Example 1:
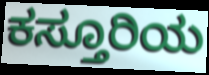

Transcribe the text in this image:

ಕಸ್ತೂರಿಯ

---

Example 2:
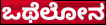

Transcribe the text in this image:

ಒಥೆಲೋನ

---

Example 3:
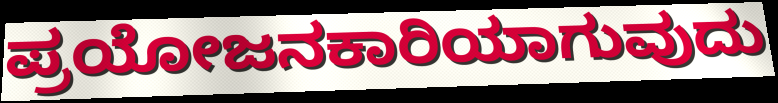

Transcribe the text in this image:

ಪ್ರಯೋಜನಕಾರಿಯಾಗುವುದು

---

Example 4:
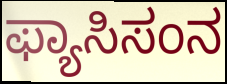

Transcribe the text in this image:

ಫ್ಯಾಸಿಸಂನ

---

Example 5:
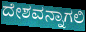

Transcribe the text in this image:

ದೇಶವನ್ನಾಗಲಿ